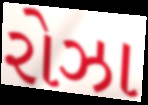
રોઝા